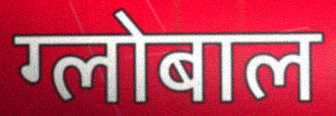
ग्लोबाल